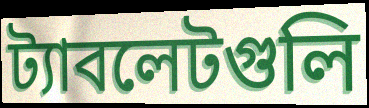
ট্যাবলেটগুলি